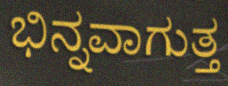
ಭಿನ್ನವಾಗುತ್ತ